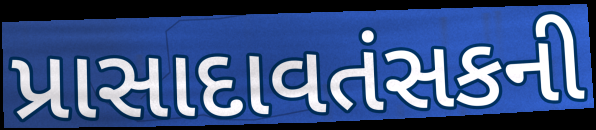
પ્રાસાદાવતંસકની